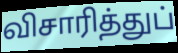
விசாரித்துப்